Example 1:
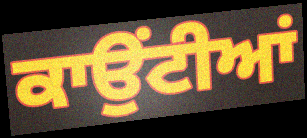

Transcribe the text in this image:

ਕਾਉਂਟੀਆਂ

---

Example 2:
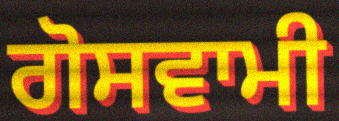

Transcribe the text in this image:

ਗੋਸਵਾਮੀ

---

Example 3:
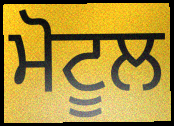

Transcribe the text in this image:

ਮੋਟੂਲ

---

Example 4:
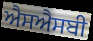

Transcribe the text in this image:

ਐਸਐਸਬੀ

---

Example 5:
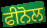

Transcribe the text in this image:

ਫੀਨੋਲ